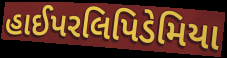
હાઈપરલિપિડેમિયા